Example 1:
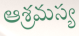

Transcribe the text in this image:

ఆశ్రమస్య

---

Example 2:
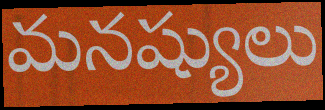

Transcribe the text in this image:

మనష్యులు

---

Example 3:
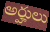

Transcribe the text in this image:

అర్హులు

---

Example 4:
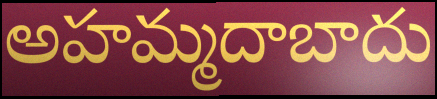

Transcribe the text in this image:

అహమ్మదాబాదు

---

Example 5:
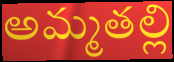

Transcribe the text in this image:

అమ్మతల్లి